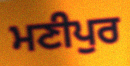
ਮਣੀਪੁਰ